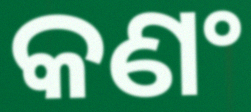
କଣଂ